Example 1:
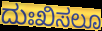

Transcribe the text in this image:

ದುಃಖಿಸಲೂ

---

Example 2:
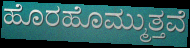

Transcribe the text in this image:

ಹೊರಹೊಮ್ಮುತ್ತವೆ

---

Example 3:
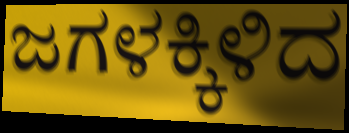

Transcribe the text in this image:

ಜಗಳಕ್ಕಿಳಿದ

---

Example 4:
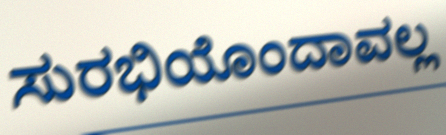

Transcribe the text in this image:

ಸುರಭಿಯೊಂದಾವಲ್ಲ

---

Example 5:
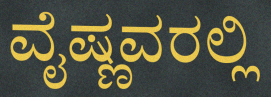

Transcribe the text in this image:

ವೈಷ್ಣವರಲ್ಲಿ